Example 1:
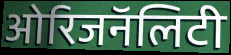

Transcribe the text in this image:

ओरिजनॅलिटी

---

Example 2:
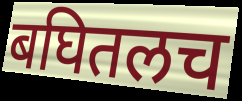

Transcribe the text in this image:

बघितलच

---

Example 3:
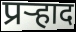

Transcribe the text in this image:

प्रर्‍हाद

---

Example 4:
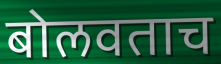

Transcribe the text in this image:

बोलवताच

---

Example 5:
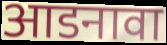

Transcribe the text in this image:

आडनावा